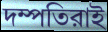
দম্পতিরাই